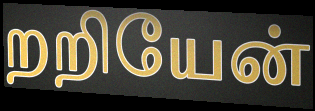
றறியேன்